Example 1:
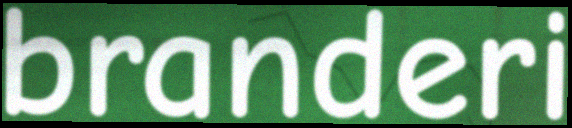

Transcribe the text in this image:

branderi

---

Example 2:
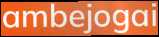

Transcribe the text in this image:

ambejogai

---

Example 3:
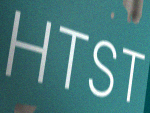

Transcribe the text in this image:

HTST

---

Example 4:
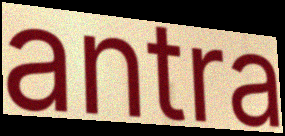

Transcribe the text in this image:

antra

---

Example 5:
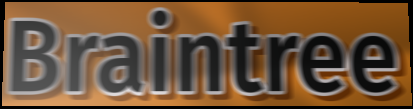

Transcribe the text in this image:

Braintree